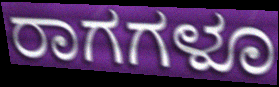
ರಾಗಗಳೂ